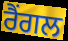
ਰੈਂਗਲ